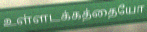
உள்ளடக்கத்தையோ